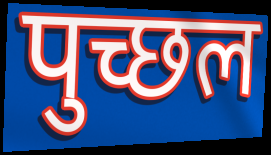
पुच्छल